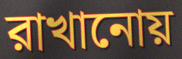
রাখানোয়